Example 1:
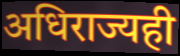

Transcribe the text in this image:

अधिराज्यही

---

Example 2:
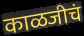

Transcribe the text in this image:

काळजीचं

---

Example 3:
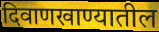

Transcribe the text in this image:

दिवाणखाण्यातील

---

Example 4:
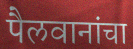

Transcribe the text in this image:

पैलवानांचा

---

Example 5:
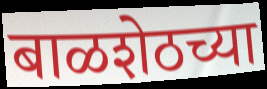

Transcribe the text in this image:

बाळशेठच्या